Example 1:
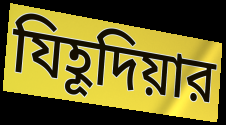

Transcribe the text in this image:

যিহূদিয়ার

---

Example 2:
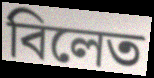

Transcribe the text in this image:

বিলেত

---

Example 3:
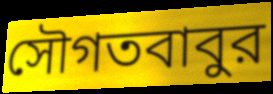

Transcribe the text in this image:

সৌগতবাবুর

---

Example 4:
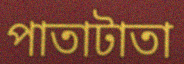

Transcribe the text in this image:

পাতাটাতা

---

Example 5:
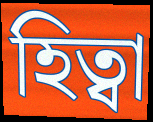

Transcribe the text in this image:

হিত্বা